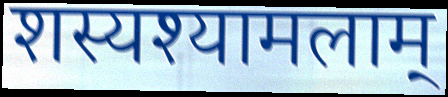
शस्यश्यामलाम्